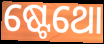
ଷ୍ଟେଥୋ